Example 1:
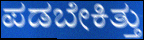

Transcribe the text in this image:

ಪಡಬೇಕಿತ್ತು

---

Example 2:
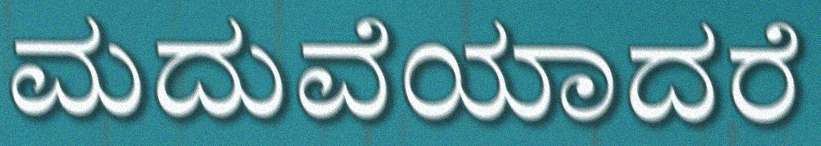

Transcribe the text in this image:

ಮದುವೆಯಾದರೆ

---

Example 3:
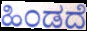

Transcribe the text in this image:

ಹಿಂಡದೆ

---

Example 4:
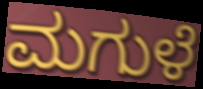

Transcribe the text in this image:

ಮಗುಳೆ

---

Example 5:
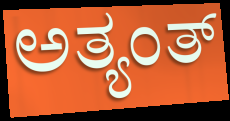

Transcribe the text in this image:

ಅತ್ಯಂತ್